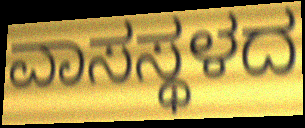
ವಾಸಸ್ಥಳದ